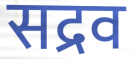
सद्रव